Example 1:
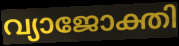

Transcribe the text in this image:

വ്യാജോക്തി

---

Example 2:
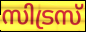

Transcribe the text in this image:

സിട്രസ്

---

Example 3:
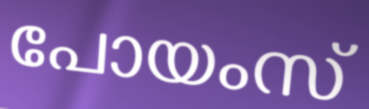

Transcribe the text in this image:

പോയംസ്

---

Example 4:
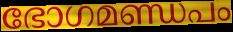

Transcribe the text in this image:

ഭോഗമണ്ഡപം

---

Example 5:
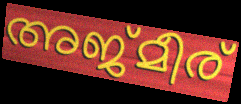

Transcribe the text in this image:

അജ്മീര്